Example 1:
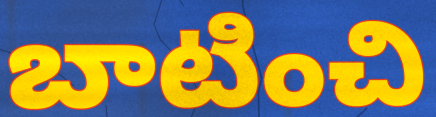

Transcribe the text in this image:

బాటించి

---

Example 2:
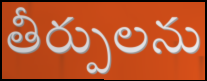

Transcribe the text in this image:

తీర్పులను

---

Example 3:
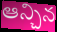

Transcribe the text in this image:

ఆన్చిన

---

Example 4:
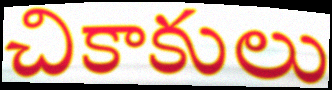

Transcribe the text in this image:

చికాకులు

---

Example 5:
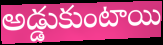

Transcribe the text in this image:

అడ్డుకుంటాయి